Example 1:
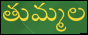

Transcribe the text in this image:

తుమ్మల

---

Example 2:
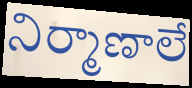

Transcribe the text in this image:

నిర్మాణాలే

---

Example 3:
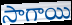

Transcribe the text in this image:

సాగాయి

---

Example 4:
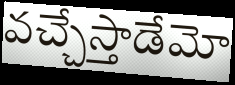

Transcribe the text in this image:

వచ్చేస్తాడేమో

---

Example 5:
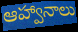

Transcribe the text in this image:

ఆహ్వానాలు